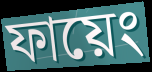
ফায়েং